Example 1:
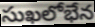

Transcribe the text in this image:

సుఖలోభేన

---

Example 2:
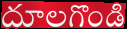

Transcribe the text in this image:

దూలగొండి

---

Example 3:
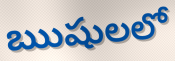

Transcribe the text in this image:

ఋషులలో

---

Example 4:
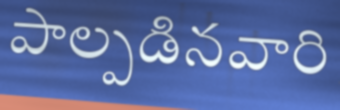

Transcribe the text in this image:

పాల్పడినవారి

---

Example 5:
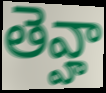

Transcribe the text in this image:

తెవ్హా